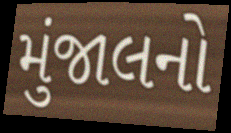
મુંજાલનો